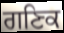
ਗਣਿਕ